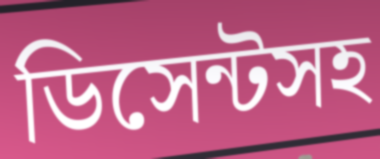
ডিসেন্টসহ